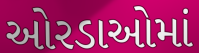
ઓરડાઓમાં